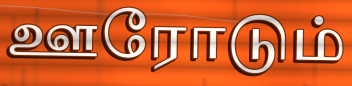
ஊரோடும்